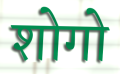
शोगो